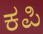
ಕಪಿ